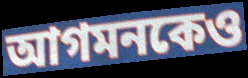
আগমনকেও